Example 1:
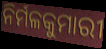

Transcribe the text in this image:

ନିର୍ମଳକୁମାରୀ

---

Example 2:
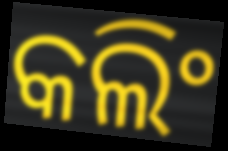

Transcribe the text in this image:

କଲିଂ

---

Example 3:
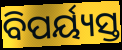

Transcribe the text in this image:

ବିପର୍ୟ୍ୟସ୍ତ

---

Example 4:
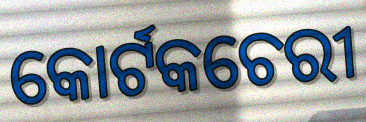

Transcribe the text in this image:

କୋର୍ଟକଚେରୀ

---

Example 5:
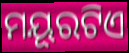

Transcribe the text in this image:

ମୟୂରଟିଏ